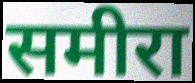
समीरा